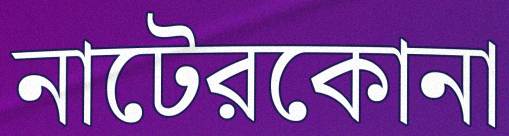
নাটেরকোনা